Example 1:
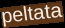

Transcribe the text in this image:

peltata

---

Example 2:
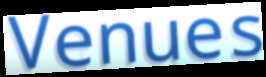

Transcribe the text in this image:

Venues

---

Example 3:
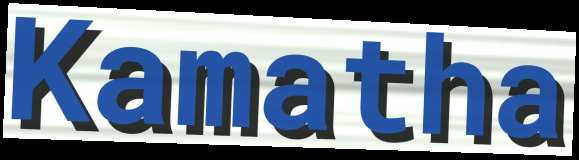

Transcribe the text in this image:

Kamatha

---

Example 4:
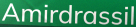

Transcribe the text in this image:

Amirdrassil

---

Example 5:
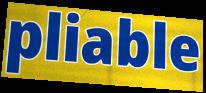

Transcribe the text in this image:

pliable